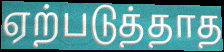
ஏற்படுத்தாத